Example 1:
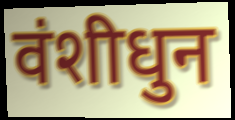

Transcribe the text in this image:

वंशीधुन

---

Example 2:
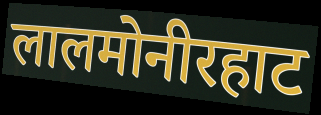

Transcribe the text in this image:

लालमोनीरहाट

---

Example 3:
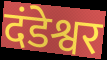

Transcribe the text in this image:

दंडेश्वर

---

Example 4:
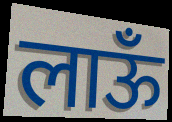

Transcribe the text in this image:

लाऊँ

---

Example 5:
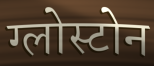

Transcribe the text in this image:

ग्लोस्टोन